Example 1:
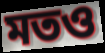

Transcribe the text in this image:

মতও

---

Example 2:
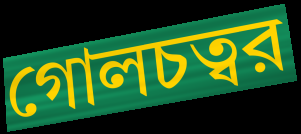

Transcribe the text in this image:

গোলচত্বর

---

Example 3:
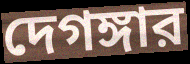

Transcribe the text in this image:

দেগঙ্গার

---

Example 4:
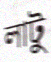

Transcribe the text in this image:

লাটু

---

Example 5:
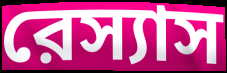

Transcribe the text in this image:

রেস্যাস